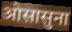
ओसासुना